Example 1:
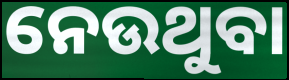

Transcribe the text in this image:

ନେଉଥୁବା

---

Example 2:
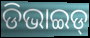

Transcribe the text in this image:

ଡିଭାଇଡ୍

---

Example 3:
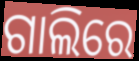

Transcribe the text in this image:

ଗାଲିରେ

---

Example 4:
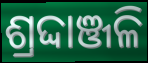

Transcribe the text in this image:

ଶ୍ରଦ୍ଦାଞ୍ଜଳି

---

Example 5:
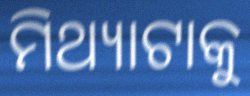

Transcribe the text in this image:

ମିଥ୍ୟାଟାକୁ